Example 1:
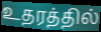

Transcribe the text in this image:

உதரத்தில்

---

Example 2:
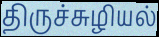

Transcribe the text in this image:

திருச்சுழியல்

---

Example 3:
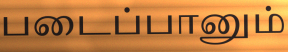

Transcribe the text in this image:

படைப்பானும்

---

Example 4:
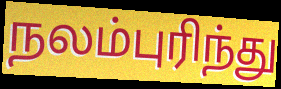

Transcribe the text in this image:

நலம்புரிந்து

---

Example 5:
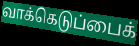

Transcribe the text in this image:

வாக்கெடுப்பைக்